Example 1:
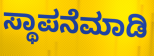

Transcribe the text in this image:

ಸ್ಥಾಪನೆಮಾಡಿ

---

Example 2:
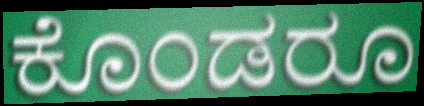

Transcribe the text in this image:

ಕೊಂಡರೂ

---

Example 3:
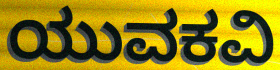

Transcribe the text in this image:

ಯುವಕವಿ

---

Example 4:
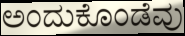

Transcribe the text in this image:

ಅಂದುಕೊಂಡೆವು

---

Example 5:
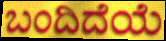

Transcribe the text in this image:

ಬಂದಿದೆಯೆ